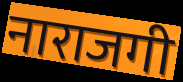
नाराजगी